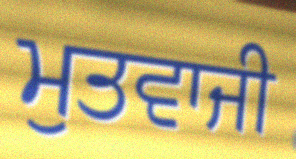
ਮੁਤਵਾਜੀ